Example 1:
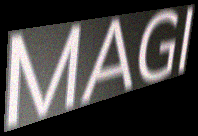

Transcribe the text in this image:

MAGI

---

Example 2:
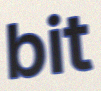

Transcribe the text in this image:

bit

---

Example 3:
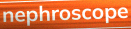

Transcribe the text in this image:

nephroscope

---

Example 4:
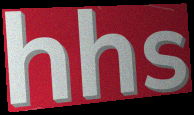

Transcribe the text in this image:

hhs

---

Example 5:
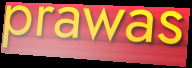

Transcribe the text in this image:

prawas